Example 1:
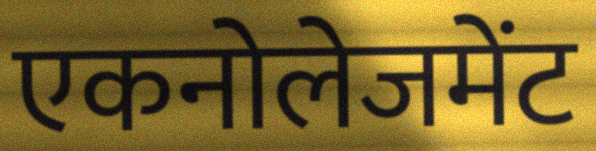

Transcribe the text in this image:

एकनोलेजमेंट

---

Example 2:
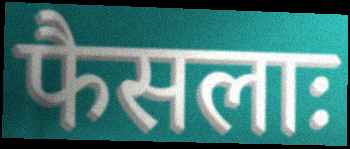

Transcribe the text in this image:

फैसलाः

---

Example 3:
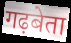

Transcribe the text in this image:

गढ़बेता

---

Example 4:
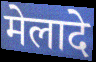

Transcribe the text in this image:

मेलादे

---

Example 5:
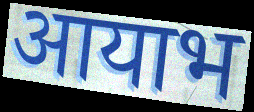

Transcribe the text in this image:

आयाभ